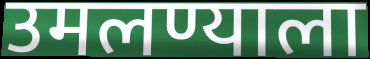
उमलण्याला